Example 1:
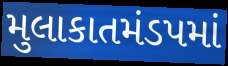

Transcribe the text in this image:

મુલાકાતમંડપમાં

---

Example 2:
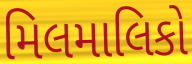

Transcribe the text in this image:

મિલમાલિકો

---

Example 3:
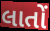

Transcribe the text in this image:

લાતોં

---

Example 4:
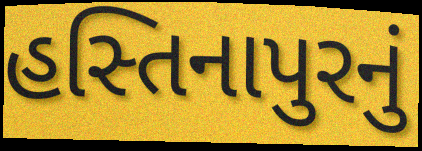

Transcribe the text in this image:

હસ્તિનાપુરનું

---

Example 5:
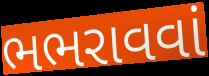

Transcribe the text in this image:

ભભરાવવાં